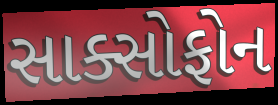
સાક્સોફોન